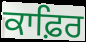
ਕਾਫ਼ਿਰ